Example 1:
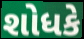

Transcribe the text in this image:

શોધકે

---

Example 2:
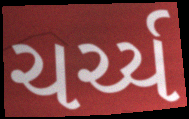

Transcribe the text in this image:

ચર્ચ્ય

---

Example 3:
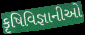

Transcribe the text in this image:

કૃષિવિજ્ઞાનીઓ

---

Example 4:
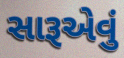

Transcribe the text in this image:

સારૂએવું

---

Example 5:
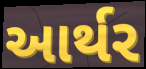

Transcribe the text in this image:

આર્થર